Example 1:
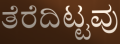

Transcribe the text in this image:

ತೆರೆದಿಟ್ಟವು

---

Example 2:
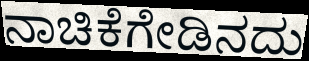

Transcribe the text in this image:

ನಾಚಿಕೆಗೇಡಿನದು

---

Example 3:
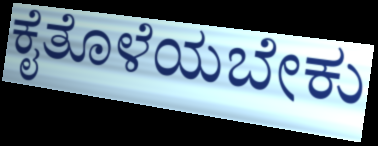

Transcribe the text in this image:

ಕೈತೊಳೆಯಬೇಕು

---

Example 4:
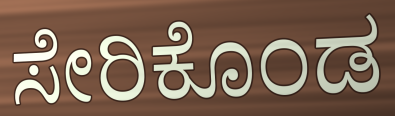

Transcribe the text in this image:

ಸೇರಿಕೊಂಡ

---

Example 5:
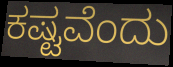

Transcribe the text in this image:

ಕಷ್ಟವೆಂದು